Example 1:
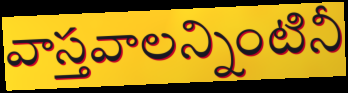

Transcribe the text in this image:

వాస్తవాలన్నింటినీ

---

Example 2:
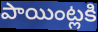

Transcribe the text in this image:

పాయింట్లకి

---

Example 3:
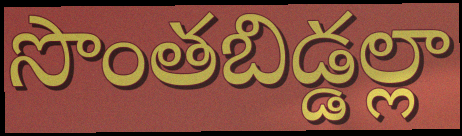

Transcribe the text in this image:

సొంతబిడ్డల్లా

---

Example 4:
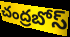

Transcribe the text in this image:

చంద్రబోస్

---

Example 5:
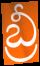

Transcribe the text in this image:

బ్రీ